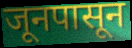
जूनपासून